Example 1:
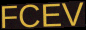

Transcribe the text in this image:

FCEV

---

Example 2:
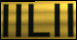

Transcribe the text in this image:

IILII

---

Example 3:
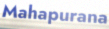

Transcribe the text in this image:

Mahapurana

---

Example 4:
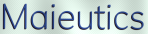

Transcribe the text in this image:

Maieutics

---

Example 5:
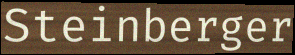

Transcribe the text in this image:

Steinberger